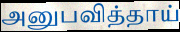
அனுபவித்தாய்